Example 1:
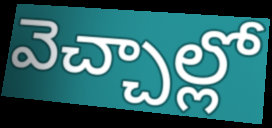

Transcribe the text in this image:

వెచ్చాల్లో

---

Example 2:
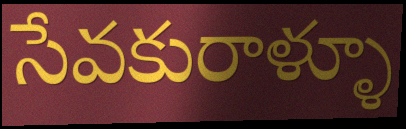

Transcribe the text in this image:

సేవకురాళ్ళూ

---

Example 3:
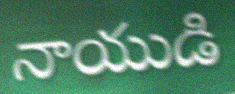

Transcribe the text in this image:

నాయుడి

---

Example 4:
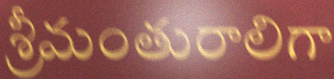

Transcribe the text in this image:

శ్రీమంతురాలిగా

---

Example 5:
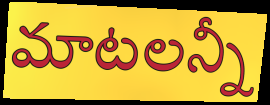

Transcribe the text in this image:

మాటలన్నీ